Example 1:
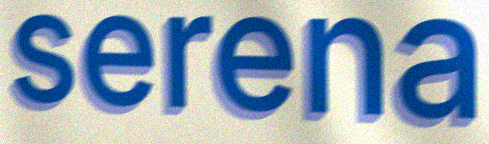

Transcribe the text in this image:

serena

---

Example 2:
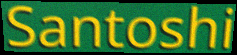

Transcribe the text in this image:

Santoshi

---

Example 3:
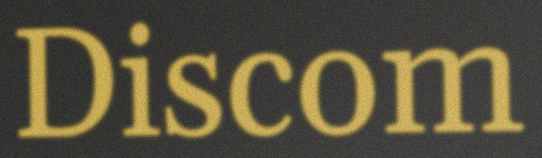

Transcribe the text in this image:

Discom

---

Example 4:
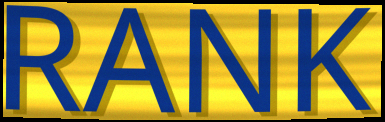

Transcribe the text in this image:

RANK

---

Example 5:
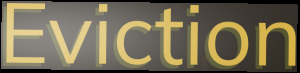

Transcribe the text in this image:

Eviction